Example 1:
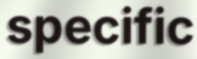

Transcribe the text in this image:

specific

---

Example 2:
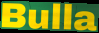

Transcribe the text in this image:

Bulla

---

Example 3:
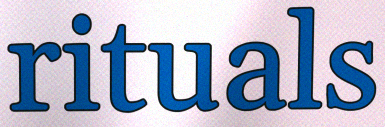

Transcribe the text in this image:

rituals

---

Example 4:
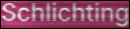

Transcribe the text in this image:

Schlichting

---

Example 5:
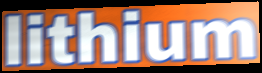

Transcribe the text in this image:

lithium